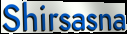
Shirsasna